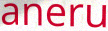
aneru